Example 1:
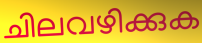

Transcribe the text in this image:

ചിലവഴിക്കുക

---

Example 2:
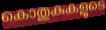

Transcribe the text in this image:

കൊതുകുകളുടെ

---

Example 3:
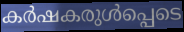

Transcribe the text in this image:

കർഷകരുൾപ്പെടെ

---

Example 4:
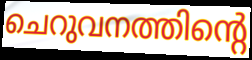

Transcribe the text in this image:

ചെറുവനത്തിന്റെ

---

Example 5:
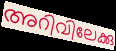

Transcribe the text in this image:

അറിവിലേക്കു